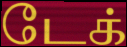
டேக்